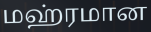
மஹ்ரமான